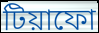
টিয়াফো